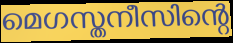
മെഗസ്തനീസിന്റെ